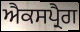
ਐਕਸਪ੍ਰੈਗ